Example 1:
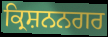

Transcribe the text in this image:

ਕ੍ਰਿਸ਼ਨਨਗਰ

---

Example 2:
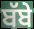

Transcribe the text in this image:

ਬੱਬੇ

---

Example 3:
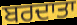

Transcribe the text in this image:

ਬਰਦਾਤਾ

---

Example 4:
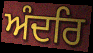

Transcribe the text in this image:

ਅੰਦਰਿ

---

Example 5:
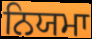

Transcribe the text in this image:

ਨਿਯਮਾ